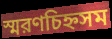
স্মরণচিহ্নসম